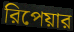
রিপেয়ার